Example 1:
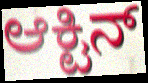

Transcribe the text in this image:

ಆಕ್ಟಿನ್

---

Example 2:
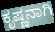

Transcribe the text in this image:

ಕೃಷ್ಣನಾಗಿ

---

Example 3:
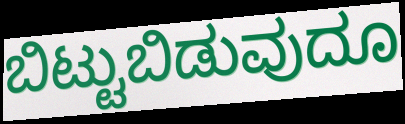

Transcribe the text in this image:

ಬಿಟ್ಟುಬಿಡುವುದೂ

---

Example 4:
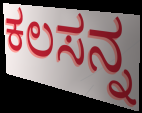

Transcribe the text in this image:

ಕಲಸನ್ನ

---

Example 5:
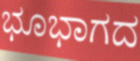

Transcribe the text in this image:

ಭೂಭಾಗದ